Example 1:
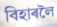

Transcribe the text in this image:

বিহাৰলৈ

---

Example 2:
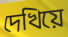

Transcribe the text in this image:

দেখিয়ে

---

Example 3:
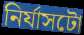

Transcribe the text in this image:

নিৰ্যাসটো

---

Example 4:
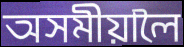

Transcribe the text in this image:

অসমীয়ালৈ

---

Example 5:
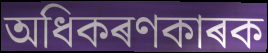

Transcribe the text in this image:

অধিকৰণকাৰক